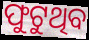
ଫୁଟୁଥିବ